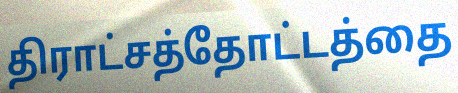
திராட்சத்தோட்டத்தை